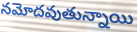
నమోదవుతున్నాయి